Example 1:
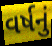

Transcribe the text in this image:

વર્ષનું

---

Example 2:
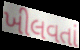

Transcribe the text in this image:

ખીલવતાં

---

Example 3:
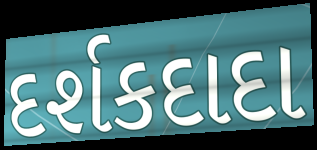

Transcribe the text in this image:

દર્શકદાદા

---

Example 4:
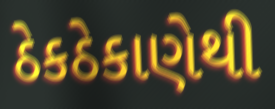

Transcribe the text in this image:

ઠેકઠેકાણેથી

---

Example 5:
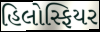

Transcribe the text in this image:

હિલોસ્ફિયર